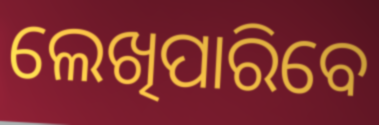
ଲେଖିପାରିବେ